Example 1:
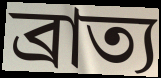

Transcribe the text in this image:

ব্রাত্য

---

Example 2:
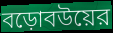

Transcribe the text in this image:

বড়োবউয়ের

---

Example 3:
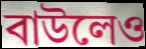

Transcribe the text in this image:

বাউলেও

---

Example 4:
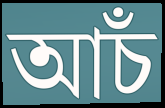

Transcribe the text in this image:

আচঁ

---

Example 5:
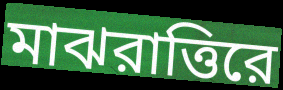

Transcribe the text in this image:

মাঝরাত্তিরে